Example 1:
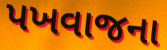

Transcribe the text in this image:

પખવાજના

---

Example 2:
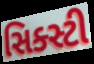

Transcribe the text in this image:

સિક્સ્ટી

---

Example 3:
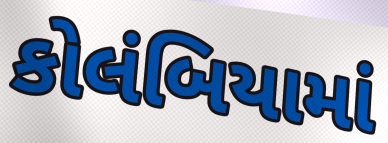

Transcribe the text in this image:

કોલંબિયામાં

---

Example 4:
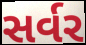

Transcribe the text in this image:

સર્વર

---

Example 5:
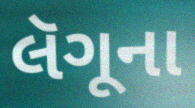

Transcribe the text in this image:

લૅગૂના